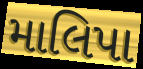
માલિપા